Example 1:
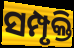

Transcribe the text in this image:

ସମ୍ପୃକ୍ତି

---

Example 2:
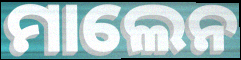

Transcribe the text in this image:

ମାଲେନ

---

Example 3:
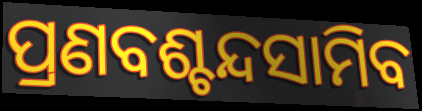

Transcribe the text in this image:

ପ୍ରଣବଶ୍ଚନ୍ଦସାମିବ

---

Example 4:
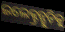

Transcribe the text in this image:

ଇଲେକ୍ଟ୍ରନ୍ଗୁଡ଼ିକୁ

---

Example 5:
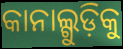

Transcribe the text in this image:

କାନାଲ୍ଗୁଡ଼ିକୁ